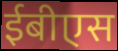
ईबीएस